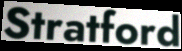
Stratford